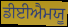
ਡੀਈਐਮਯੂ